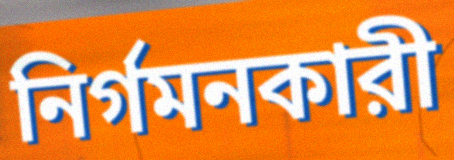
নির্গমনকারী